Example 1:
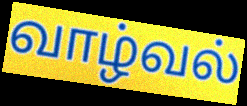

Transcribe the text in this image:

வாழ்வல்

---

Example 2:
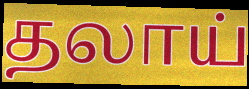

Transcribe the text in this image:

தலாய்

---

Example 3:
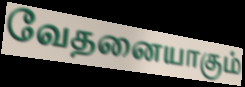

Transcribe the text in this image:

வேதனையாகும்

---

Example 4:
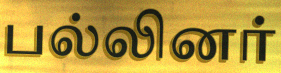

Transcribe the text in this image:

பல்லினர்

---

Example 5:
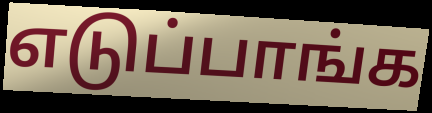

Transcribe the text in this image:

எடுப்பாங்க